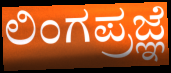
ಲಿಂಗಪ್ರಜ್ಞೆ